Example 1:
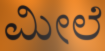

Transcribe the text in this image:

ಮೀಲೆ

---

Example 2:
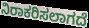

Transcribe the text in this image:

ನಿರಾಕರಿಸಲಾಗದೆ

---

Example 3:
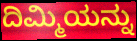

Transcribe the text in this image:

ದಿಮ್ಮಿಯನ್ನು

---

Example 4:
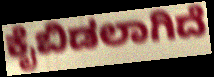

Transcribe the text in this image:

ಕೈಬಿಡಲಾಗಿದೆ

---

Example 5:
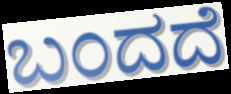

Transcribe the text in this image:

ಬಂದದೆ